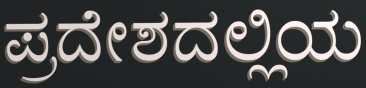
ಪ್ರದೇಶದಲ್ಲಿಯ